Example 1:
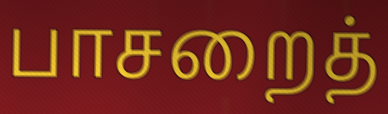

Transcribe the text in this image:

பாசறைத்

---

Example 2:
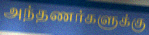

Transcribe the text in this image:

அந்தணர்களுக்கு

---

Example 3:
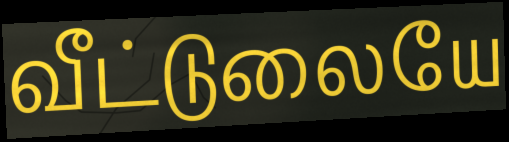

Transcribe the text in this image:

வீட்டுலையே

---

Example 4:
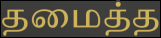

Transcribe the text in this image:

தமைத்த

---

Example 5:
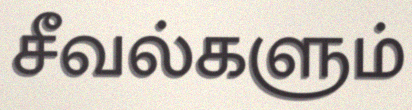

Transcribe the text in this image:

சீவல்களும்